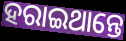
ହରାଇଥାନ୍ତେ